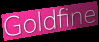
Goldfine